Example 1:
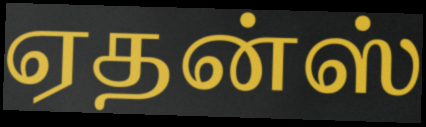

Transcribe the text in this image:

ஏதன்ஸ்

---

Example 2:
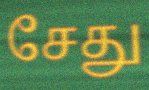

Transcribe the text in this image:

சேது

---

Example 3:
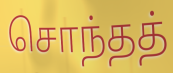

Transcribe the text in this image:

சொந்தத்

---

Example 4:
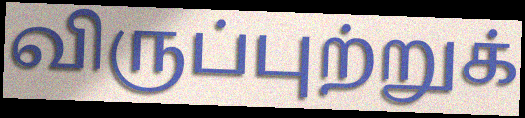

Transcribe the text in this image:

விருப்புற்றுக்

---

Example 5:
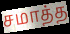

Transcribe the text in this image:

சமாத்த